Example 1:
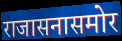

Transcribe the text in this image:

राजासनासमोर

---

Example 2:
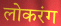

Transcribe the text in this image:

लोकरंग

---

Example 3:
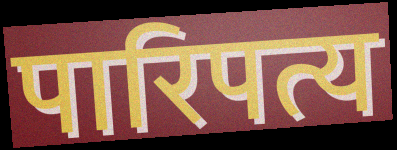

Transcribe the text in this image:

पारिपत्य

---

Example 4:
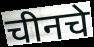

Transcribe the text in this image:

चीनचे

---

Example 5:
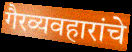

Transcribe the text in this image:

गैरव्यवहारांचे